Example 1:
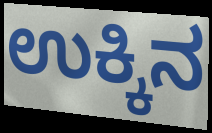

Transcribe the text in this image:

ಉಕ್ಕಿನ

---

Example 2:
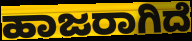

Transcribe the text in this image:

ಹಾಜರಾಗಿದೆ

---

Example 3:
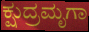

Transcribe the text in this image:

ಕ್ಷುದ್ರಮೃಗಾ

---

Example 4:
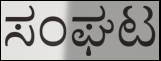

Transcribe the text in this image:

ಸಂಘಟ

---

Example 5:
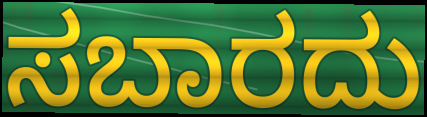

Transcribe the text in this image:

ಸಬಾರದು